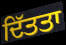
ਦਿੱਤਤਾ